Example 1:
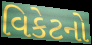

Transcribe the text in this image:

વિકેટનો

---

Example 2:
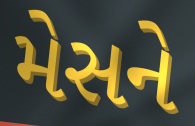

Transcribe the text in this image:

મેસને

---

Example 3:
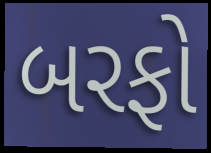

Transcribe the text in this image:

બરફો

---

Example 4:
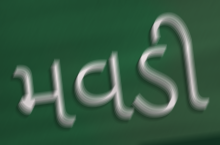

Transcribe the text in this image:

મવડી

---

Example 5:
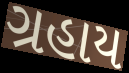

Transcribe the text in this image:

ગ્રહાય